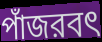
পাঁজরবৎ